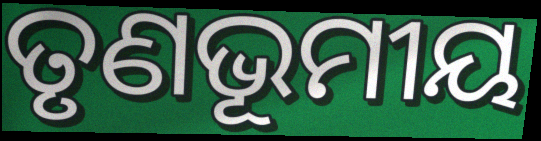
ତୃଣଭୂମୀୟ